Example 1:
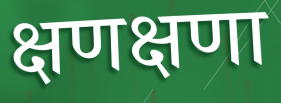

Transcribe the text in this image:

क्षणक्षणा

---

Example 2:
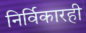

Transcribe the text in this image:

निर्विकारही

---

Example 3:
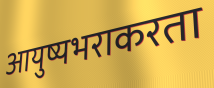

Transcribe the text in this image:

आयुष्यभराकरता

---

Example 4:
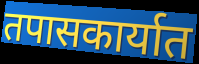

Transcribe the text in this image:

तपासकार्यात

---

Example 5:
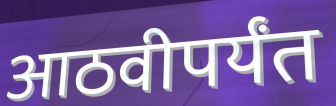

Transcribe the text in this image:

आठवीपर्यंत